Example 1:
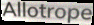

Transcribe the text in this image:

Allotrope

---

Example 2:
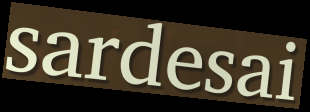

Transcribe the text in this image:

sardesai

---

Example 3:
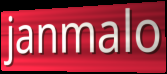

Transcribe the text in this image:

janmalo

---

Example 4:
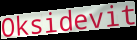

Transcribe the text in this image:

Oksidevit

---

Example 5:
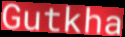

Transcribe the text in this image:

Gutkha